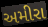
અમીરા